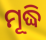
ମୂଦ୍ଧି